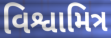
વિશ્વામિત્ર